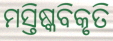
ମସ୍ତିଷ୍କବିକୃତି